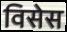
विसेस